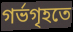
গর্ভগৃহতে